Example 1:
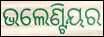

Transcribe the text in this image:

ଭଲେଣ୍ଟିୟର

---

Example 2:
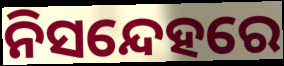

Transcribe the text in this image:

ନିସନ୍ଦେହରେ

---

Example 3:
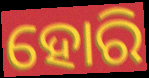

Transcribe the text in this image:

ହୋରି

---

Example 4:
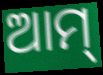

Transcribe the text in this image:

ଆମ୍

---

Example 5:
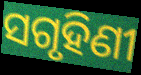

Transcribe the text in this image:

ସଗୃହିଣୀ